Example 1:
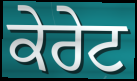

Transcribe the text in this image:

ਕੇਰੇਟ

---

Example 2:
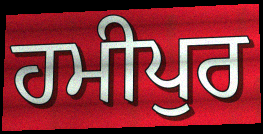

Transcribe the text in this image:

ਹਮੀਪੁਰ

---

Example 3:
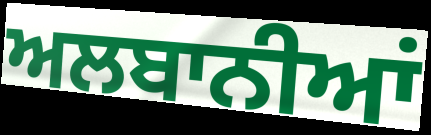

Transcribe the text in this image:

ਅਲਬਾਨੀਆਂ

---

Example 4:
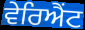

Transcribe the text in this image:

ਵੇਰਿਐਂਟ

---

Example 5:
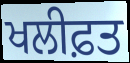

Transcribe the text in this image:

ਖਲੀਫ਼ਤ